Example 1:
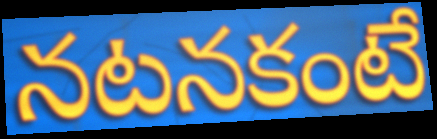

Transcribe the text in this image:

నటనకంటే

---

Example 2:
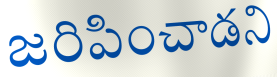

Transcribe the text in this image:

జరిపించాడని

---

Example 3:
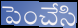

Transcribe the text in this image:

పెంచేసి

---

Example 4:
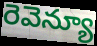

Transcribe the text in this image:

రెవెన్యూ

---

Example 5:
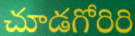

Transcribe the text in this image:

చూడగోరిరి